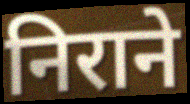
निराने